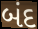
બંદ